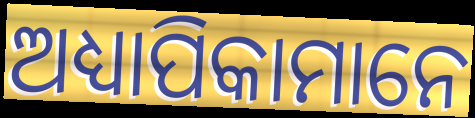
ଅଧ୍ୟାପିକାମାନେ